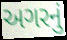
અગરનું